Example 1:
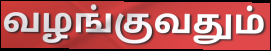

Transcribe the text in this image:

வழங்குவதும்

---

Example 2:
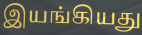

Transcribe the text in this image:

இயங்கியது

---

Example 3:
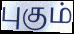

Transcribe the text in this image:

புகும்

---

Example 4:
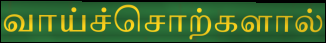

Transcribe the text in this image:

வாய்ச்சொற்களால்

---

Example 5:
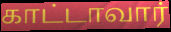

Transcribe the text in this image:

காட்டாவார்